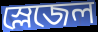
স্লেজেল